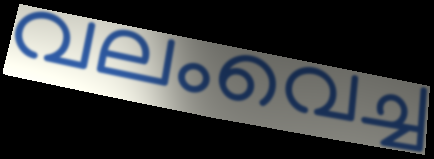
വലംവെച്ച